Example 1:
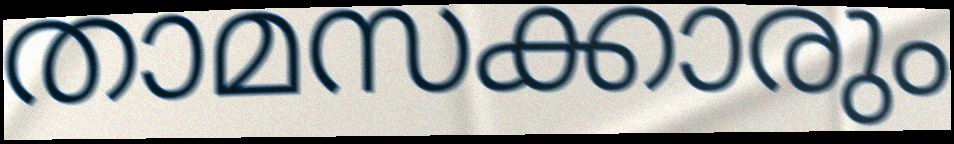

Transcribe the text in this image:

താമസക്കാരും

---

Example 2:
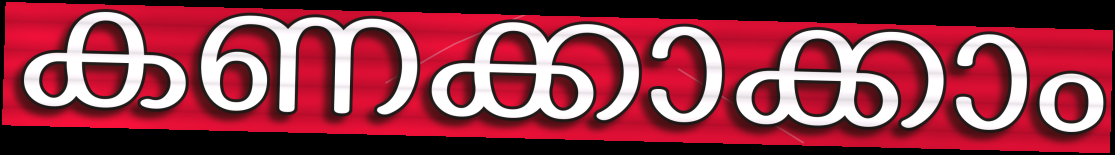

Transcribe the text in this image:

കണക്കാക്കാം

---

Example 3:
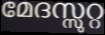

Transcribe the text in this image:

മേദസ്സുറ്റ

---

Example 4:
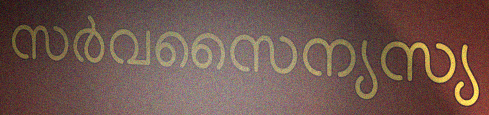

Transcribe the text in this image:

സർവസൈന്യസ്യ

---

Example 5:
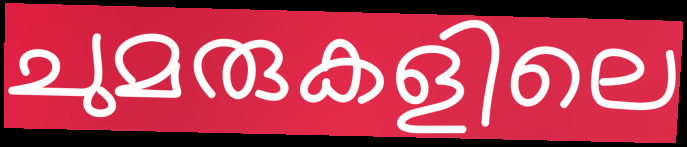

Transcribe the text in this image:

ചുമരുകളിലെ